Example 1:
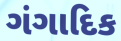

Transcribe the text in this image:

ગંગાદિક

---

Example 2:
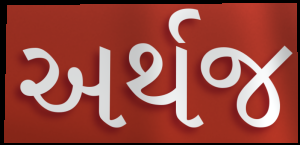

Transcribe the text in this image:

અર્થજ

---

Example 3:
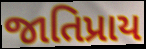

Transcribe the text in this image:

જાતિપ્રાય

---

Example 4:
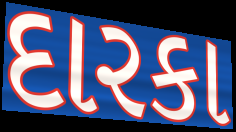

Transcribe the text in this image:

દારકા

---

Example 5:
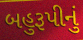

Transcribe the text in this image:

બહુરૂપીનું